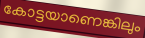
കോട്ടയാണെങ്കിലും